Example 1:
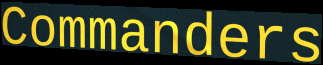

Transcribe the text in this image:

Commanders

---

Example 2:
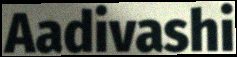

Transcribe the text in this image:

Aadivashi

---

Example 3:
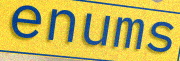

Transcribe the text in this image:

enums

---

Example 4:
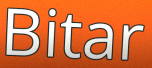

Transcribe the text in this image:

Bitar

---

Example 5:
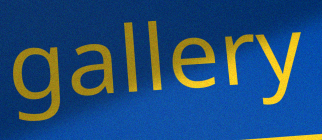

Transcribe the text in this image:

gallery